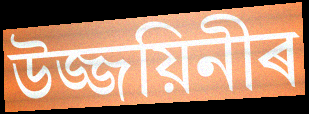
উজ্জয়িনীৰ